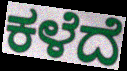
ಕಳೆದೆ